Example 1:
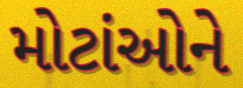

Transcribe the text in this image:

મોટાંઓને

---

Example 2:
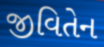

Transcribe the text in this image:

જીવિતેન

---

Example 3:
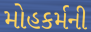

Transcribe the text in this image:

મોહકર્મની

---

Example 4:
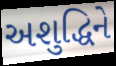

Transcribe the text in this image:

અશુદ્ધિને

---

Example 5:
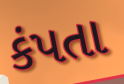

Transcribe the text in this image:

કંપતા